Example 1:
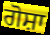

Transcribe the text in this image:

ਗੋਸ਼ਾ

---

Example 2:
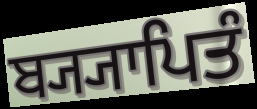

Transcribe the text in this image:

ਬ੍ਯ੍ਯਾਪਿਤੰ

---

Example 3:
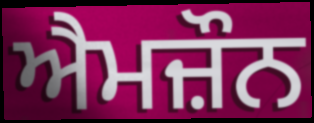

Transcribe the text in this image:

ਐਮਜ਼ੌਨ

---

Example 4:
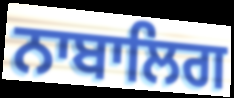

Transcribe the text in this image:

ਨਾਬਾਲਿਗ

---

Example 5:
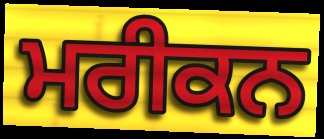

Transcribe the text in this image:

ਮਰੀਕਨ